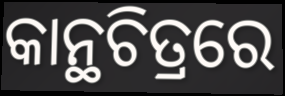
କାନ୍ଥଚିତ୍ରରେ